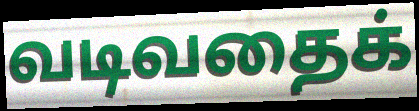
வடிவதைக்